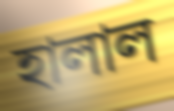
হালাল